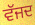
ਵੱਜਦ